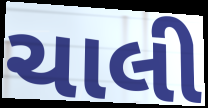
ચાલી